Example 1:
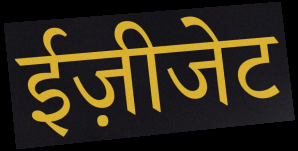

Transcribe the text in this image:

ईज़ीजेट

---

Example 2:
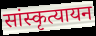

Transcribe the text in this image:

सांस्कृत्यायन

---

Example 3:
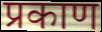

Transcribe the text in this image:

प्रकाण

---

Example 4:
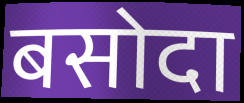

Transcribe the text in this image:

बसोदा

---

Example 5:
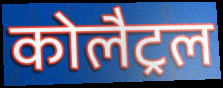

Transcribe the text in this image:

कोलैट्रल